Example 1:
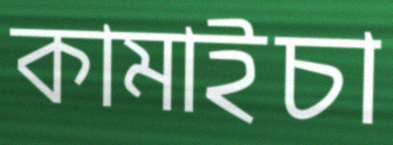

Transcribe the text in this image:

কামাইচা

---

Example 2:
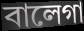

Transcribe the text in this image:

বালেগা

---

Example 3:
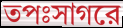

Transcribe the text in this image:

তপঃসাগরে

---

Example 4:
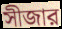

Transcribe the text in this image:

সীজার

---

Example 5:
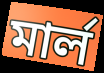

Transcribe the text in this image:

মার্ল